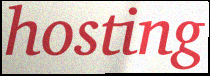
hosting